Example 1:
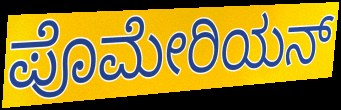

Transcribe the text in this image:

ಪೊಮೇರಿಯನ್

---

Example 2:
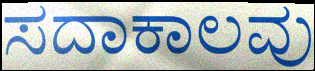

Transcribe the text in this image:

ಸದಾಕಾಲವು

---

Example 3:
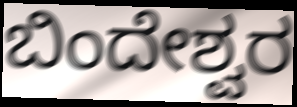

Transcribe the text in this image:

ಬಿಂದೇಶ್ವರ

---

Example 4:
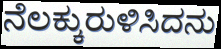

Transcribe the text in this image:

ನೆಲಕ್ಕುರುಳಿಸಿದನು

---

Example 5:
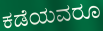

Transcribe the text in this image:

ಕಡೆಯವರೂ